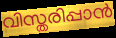
വിസ്തരിപ്പാൻ